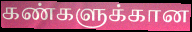
கண்களுக்கான